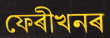
ফেৰীখনৰ